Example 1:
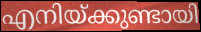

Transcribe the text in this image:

എനിയ്ക്കുണ്ടായി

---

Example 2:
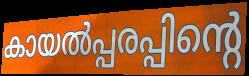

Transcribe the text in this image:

കായൽപ്പരപ്പിന്റെ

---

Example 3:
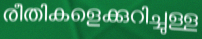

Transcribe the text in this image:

രീതികളെക്കുറിച്ചുള്ള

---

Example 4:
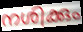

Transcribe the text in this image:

നശിക്കും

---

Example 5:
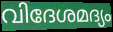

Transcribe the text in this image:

വിദേശമദ്യം